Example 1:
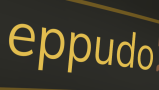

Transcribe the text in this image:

eppudo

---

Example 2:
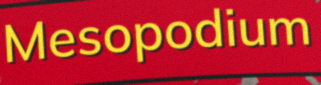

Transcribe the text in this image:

Mesopodium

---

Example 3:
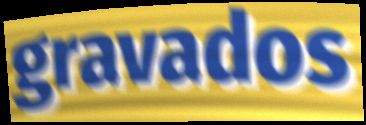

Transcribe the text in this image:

gravados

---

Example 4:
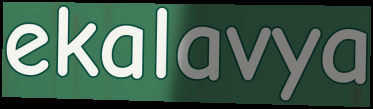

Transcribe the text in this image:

ekalavya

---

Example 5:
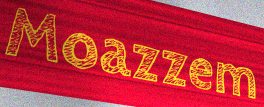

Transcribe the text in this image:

Moazzem